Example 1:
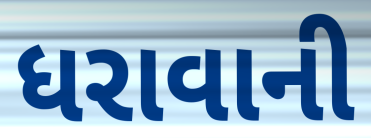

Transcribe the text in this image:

ધરાવાની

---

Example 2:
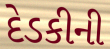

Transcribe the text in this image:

દેડકીની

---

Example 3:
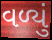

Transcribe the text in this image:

વળ્યું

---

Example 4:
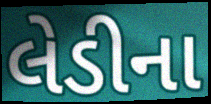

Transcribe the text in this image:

લેડીના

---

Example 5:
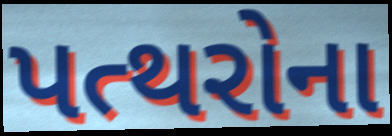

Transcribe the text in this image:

પત્થરોના